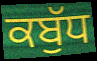
ਕਬੁੱਧ